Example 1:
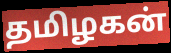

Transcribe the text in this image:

தமிழகன்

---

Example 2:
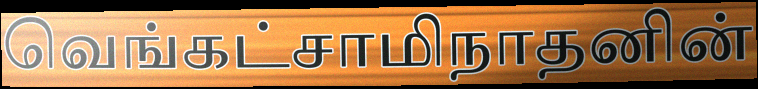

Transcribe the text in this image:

வெங்கட்சாமிநாதனின்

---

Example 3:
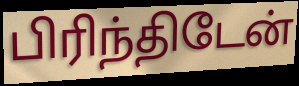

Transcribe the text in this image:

பிரிந்திடேன்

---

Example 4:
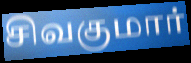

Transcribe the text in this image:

சிவகுமார்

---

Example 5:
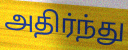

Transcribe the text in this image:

அதிர்ந்து